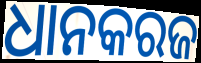
ଧାନକରଜ